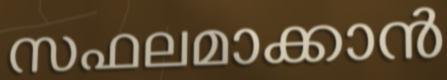
സഫലമാക്കാൻ